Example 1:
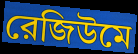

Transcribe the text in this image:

রেজিউমে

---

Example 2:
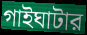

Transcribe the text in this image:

গাইঘাটার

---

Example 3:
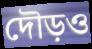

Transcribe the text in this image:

দৌড়ও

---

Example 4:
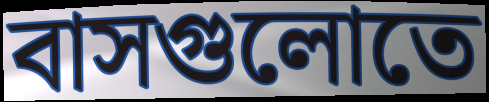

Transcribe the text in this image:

বাসগুলোতে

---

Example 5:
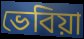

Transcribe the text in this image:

ভেবিয়া